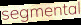
segmental